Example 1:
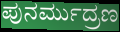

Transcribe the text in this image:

ಪುನರ್ಮುದ್ರಣ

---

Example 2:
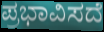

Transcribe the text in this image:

ಪ್ರಭಾವಿಸದೆ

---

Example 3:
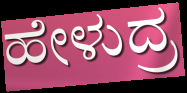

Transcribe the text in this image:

ಹೇಳುದ್ರ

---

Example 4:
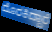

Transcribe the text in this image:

ದೊರಕಿದ್ದಾರೆ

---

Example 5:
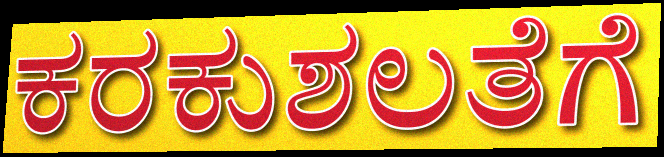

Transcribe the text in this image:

ಕರಕುಶಲತೆಗೆ